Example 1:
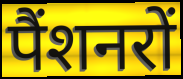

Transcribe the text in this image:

पैंशनरों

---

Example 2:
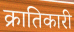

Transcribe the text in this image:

क्रातिकारी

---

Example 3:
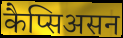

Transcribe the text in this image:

कैप्सिअसन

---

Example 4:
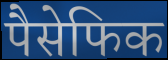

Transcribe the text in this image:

पैसेफिक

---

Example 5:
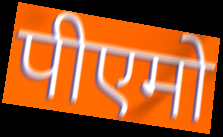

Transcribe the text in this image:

पीएमो